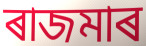
ৰাজমাৰ